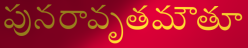
పునరావృతమౌతూ